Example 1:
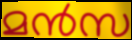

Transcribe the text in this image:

മൻസ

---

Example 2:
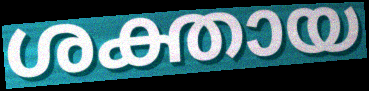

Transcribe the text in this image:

ശക്തായ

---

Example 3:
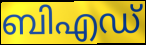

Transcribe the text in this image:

ബിഎഡ്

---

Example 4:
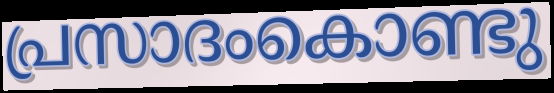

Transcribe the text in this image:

പ്രസാദംകൊണ്ടു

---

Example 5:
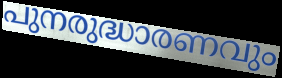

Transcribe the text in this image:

പുനരുദ്ധാരണവും